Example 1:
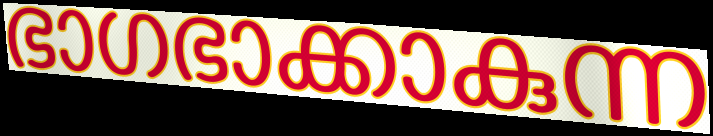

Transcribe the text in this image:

ഭാഗഭാക്കാകുന്ന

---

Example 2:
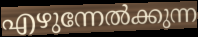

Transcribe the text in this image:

എഴുന്നേൽക്കുന്ന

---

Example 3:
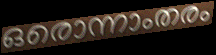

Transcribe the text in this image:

ഒരൊന്നാംതരം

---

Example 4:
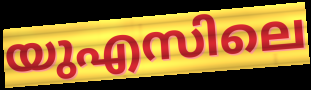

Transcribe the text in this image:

യുഎസിലെ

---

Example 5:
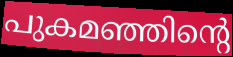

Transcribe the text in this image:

പുകമഞ്ഞിന്റെ